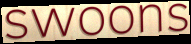
swoons